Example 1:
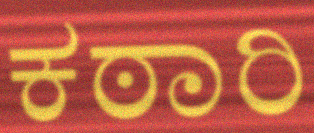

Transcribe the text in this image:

ಕಠಾರಿ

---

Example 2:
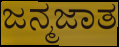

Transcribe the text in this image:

ಜನ್ಮಜಾತ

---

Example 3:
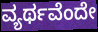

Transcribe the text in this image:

ವ್ಯರ್ಥವೆಂದೇ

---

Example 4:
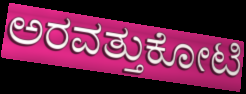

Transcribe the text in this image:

ಅರವತ್ತುಕೋಟಿ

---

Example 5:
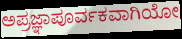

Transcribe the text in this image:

ಅಪ್ರಜ್ಞಾಪೂರ್ವಕವಾಗಿಯೋ